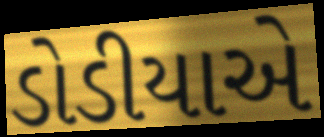
ડોડીયાએ